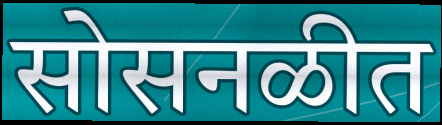
सोसनळीत